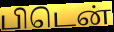
பிடென்